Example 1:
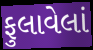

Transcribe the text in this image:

ફુલાવેલાં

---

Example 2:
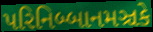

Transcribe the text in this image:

પરિનિબ્બાનમઞ્ચકે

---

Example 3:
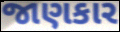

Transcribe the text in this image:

જાણકાર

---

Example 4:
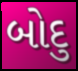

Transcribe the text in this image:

બોદુ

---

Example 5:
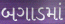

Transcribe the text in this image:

બગાડમાં